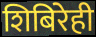
शिबिरेही